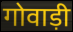
गोवाड़ी